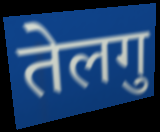
तेलगु